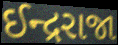
ઈન્દ્રરાજા